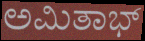
ಅಮಿತಾಭ್